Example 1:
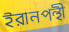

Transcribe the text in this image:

ইরানপন্থী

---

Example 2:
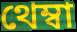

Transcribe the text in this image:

থেম্বা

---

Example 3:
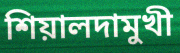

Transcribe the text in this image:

শিয়ালদামুখী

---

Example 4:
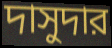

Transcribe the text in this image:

দাসুদার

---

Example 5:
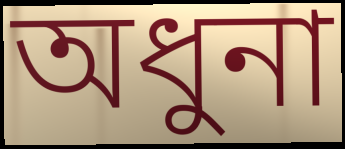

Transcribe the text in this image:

অধুনা